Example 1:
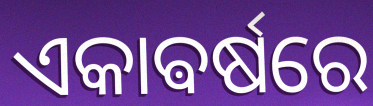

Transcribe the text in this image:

ଏକାଵର୍ଷରେ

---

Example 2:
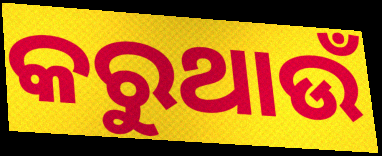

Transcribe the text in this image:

କରୁଥାଉଁ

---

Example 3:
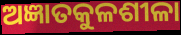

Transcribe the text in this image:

ଅଜ୍ଞାତକୁଳଶୀଳା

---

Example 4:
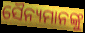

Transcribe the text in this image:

ସୈନ୍ୟମାନଙ୍କୁ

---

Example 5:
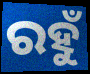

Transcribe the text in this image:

ରହୁଁ